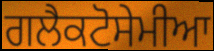
ਗਲੈਕਟੋਸੇਮੀਆ